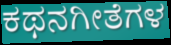
ಕಥನಗೀತೆಗಳ